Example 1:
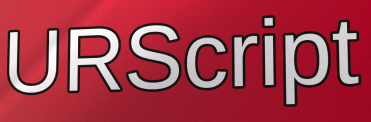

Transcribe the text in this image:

URScript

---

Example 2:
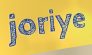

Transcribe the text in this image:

joriye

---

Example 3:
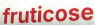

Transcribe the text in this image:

fruticose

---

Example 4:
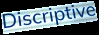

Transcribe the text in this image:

Discriptive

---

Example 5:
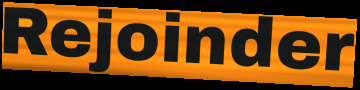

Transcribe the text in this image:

Rejoinder